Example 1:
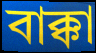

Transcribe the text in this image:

বাক্কা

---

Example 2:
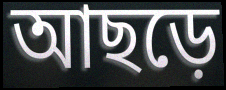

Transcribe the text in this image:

আছড়ে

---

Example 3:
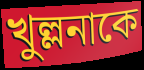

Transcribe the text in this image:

খুল্লনাকে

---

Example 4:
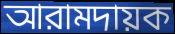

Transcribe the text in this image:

আরামদায়ক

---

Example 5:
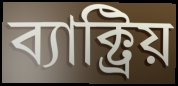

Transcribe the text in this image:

ব্যাক্ট্রিয়